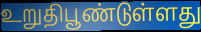
உறுதிபூண்டுள்ளது